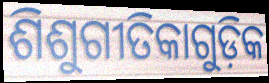
ଶିଶୁଗୀତିକାଗୁଡ଼ିକ